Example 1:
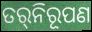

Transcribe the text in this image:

ତର୍‌ନିରୂପଣ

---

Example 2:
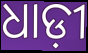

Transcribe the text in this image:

ଧାଡ଼ୀ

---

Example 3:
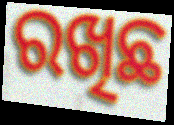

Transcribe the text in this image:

ରଖିଛ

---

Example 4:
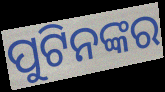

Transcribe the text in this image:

ପୁଟିନଙ୍କର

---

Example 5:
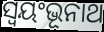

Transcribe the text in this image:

ସ୍ଵୟଂଭୂନାଥ